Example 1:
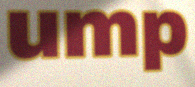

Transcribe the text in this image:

ump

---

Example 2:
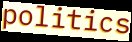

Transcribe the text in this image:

politics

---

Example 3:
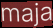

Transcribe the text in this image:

maja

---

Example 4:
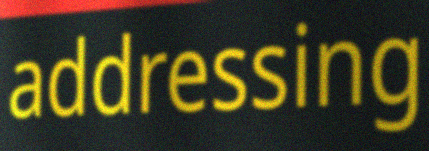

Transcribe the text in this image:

addressing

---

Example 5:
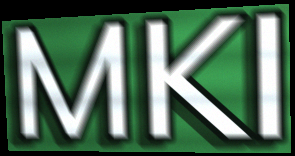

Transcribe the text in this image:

MKI